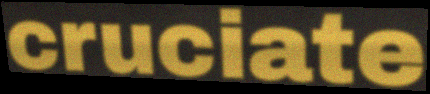
cruciate